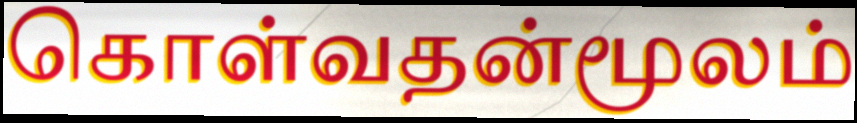
கொள்வதன்மூலம்